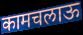
कामचलाऊ